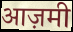
आज़मी